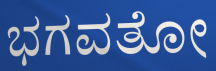
ಭಗವತೋ